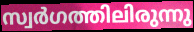
സ്വർഗത്തിലിരുന്നു